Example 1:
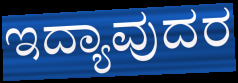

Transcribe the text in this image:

ಇದ್ಯಾವುದರ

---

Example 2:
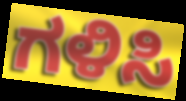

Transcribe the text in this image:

ಗಳಿಸಿ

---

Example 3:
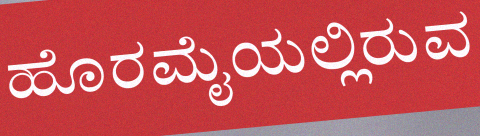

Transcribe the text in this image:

ಹೊರಮೈಯಲ್ಲಿರುವ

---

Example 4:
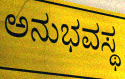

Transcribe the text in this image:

ಅನುಭವಸ್ಥ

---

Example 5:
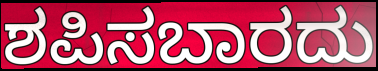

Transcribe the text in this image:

ಶಪಿಸಬಾರದು